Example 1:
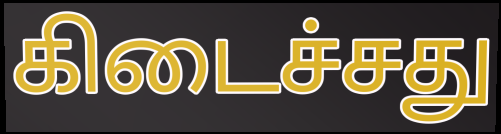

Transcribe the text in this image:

கிடைச்சது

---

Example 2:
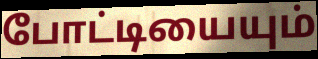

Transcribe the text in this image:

போட்டியையும்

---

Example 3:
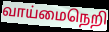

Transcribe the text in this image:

வாய்மைநெறி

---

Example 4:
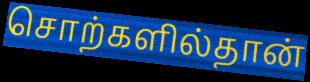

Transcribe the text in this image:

சொற்களில்தான்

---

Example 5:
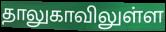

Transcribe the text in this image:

தாலுகாவிலுள்ள